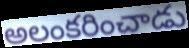
అలంకరించాడు